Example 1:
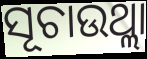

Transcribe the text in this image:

ସୂଚାଉଥ୍ଲା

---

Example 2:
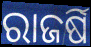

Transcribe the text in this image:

ରାଜର୍ଷି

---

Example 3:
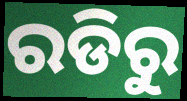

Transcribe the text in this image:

ରଡିରୁ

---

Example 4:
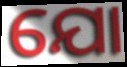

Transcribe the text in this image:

ଯୋ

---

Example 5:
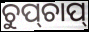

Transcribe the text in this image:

ଚୁପ୍‌ଚାପ୍